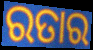
ରତାର